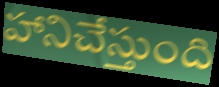
హానిచేస్తుంది